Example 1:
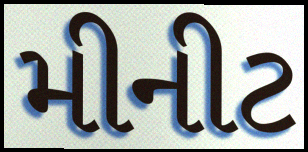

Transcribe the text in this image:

મીનીટ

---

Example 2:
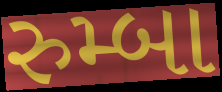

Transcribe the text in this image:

રુમ્બા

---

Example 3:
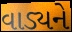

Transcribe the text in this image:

વાડ્યને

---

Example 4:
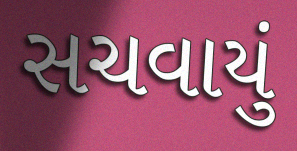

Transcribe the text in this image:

સચવાયું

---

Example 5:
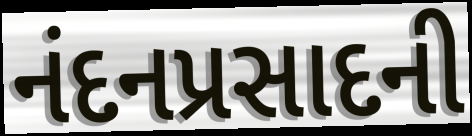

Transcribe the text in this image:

નંદનપ્રસાદની